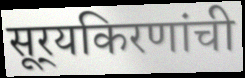
सूर्यकिरणांची